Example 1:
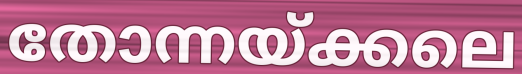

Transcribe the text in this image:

തോന്നയ്ക്കലെ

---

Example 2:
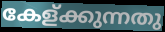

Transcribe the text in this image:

കേള്ക്കുന്നതു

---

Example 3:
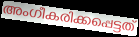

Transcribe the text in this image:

അംഗീകരിക്കപ്പെട്ടത്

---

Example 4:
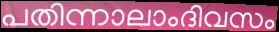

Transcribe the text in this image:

പതിന്നാലാംദിവസം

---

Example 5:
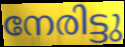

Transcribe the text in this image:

നേരിട്ടു